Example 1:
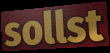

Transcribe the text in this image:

sollst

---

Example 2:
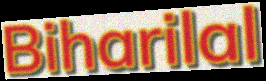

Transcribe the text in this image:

Biharilal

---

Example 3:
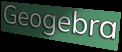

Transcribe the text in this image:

Geogebra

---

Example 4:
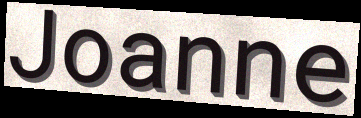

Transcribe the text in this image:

Joanne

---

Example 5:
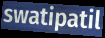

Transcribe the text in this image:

swatipatil